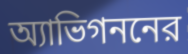
অ্যাভিগননের